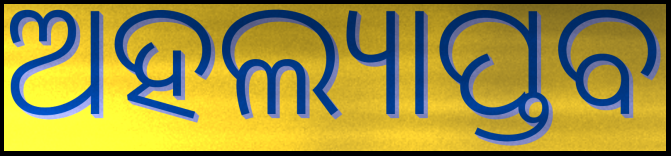
ଅହଲ୍ୟାପ୍ତବ